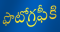
ఫొటోగ్రఫీకి